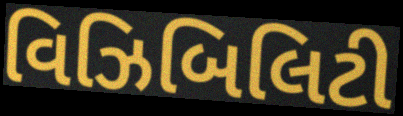
વિઝિબિલિટી